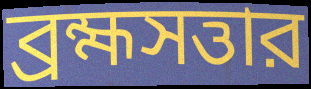
ব্রহ্মসত্তার